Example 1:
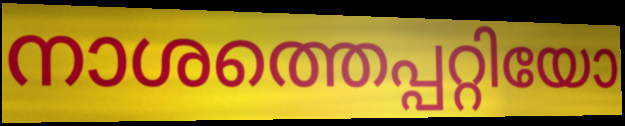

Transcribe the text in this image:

നാശത്തെപ്പറ്റിയോ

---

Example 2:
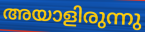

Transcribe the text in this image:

അയാളിരുന്നു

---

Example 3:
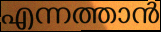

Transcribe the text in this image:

എന്നത്താൻ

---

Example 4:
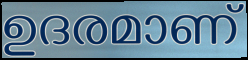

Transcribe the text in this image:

ഉദരമാണ്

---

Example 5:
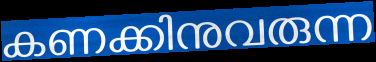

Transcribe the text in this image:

കണക്കിനുവരുന്ന